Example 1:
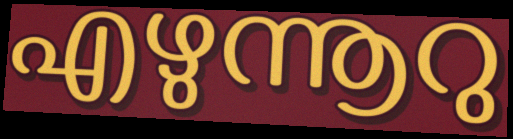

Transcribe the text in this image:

എഴുന്നൂറു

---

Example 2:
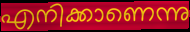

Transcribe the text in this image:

എനിക്കാണെന്നു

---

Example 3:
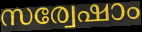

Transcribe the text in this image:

സര്വേഷാം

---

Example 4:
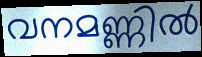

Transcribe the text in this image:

വനമണ്ണിൽ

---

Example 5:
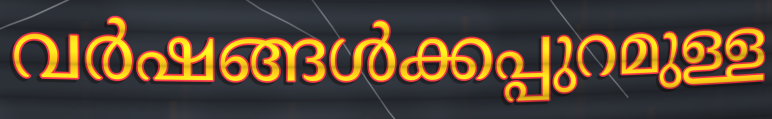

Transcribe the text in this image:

വർഷങ്ങൾക്കപ്പുറമുള്ള